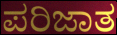
ಪರಿಜಾತ